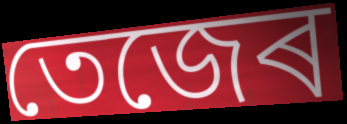
তেজেৰ